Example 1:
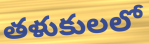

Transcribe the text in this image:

తళుకులలో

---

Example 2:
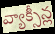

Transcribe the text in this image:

వ్యాక్సీన్ల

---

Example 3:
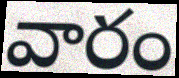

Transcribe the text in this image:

వారం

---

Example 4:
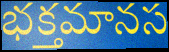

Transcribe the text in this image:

భక్తమానస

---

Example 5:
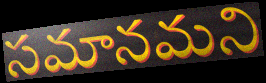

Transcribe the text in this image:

సమానమని